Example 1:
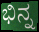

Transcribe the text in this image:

ಭಿನ್ನ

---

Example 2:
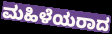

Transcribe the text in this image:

ಮಹಿಳೆಯರಾದ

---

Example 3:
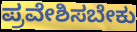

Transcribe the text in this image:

ಪ್ರವೇಶಿಸಬೇಕು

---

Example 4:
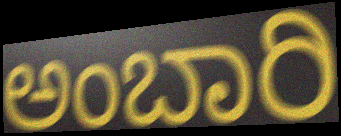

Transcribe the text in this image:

ಅಂಬಾರಿ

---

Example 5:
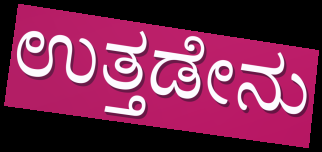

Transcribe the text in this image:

ಉತ್ತಡೇನು